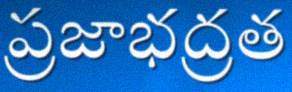
ప్రజాభద్రత